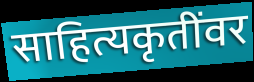
साहित्यकृतींवर